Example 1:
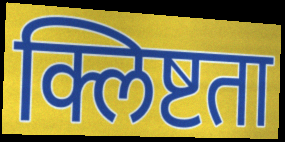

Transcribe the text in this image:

क्लिष्टता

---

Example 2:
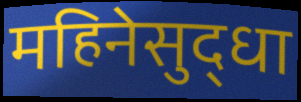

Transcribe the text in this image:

महिनेसुद्धा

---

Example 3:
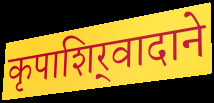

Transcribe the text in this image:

कृपाशिर्वादाने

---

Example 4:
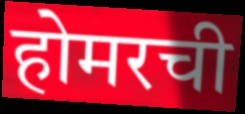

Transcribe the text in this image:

होमरची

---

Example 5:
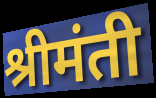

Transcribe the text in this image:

श्रीमंती